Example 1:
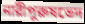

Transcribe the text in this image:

নারীপুরুষভেদ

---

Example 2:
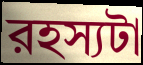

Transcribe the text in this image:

রহস্যটা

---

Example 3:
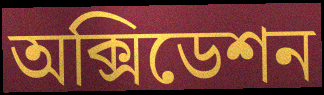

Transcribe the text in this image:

অক্সিডেশন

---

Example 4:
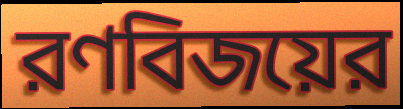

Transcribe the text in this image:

রণবিজয়ের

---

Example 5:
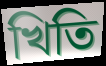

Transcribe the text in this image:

খিতি